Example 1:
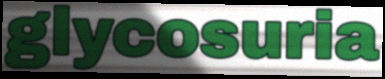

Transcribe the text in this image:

glycosuria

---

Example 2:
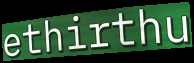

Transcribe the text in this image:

ethirthu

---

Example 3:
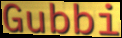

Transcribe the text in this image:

Gubbi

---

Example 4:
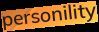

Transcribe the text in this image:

personility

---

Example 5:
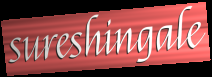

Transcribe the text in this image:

sureshingale